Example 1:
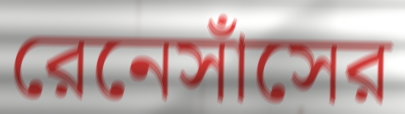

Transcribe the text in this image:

রেনেসাঁসের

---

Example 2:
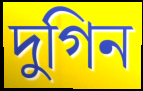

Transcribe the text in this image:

দুগিন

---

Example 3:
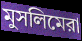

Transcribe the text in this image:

মুসলিমেরা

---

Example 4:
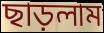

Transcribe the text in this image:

ছাড়লাম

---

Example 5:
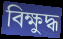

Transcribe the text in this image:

বিক্ষুদ্ধ